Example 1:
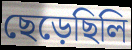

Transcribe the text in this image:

ছেড়েছিলি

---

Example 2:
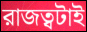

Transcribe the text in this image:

রাজত্বটাই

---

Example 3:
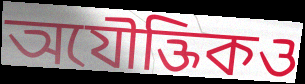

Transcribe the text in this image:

অযৌক্তিকও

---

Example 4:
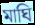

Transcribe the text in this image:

মাঘি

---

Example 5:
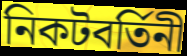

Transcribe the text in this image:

নিকটবর্তিনী